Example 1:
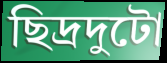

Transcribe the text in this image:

ছিদ্রদুটো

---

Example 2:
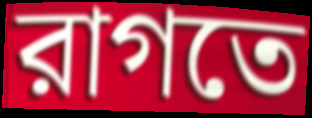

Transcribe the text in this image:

রাগতে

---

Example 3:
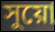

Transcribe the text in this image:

সুয়ো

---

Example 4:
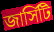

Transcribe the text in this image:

জার্সিটি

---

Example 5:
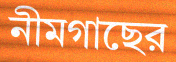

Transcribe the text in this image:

নীমগাছের